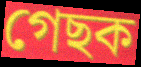
গেছক